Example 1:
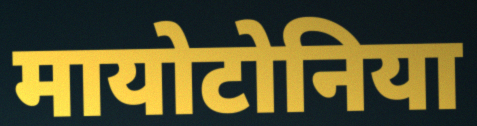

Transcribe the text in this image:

मायोटोनिया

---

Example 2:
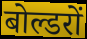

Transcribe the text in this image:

बोल्डरों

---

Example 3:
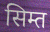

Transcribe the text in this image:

सिम्त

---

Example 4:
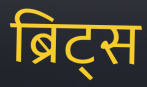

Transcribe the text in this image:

ब्रिट्स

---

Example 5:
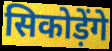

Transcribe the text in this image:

सिकोड़ेंगे